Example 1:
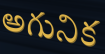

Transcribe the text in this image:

అగునిక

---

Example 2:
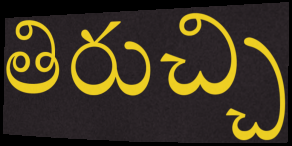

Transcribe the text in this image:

తిరుచ్చి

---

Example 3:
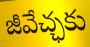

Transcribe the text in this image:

జీవేచ్ఛకు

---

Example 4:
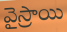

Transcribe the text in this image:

వైస్రాయి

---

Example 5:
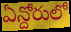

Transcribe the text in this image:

ఏన్దోరులో